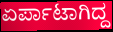
ಏರ್ಪಾಟಾಗಿದ್ದ